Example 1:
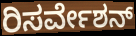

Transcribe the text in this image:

ರಿಸರ್ವೇಶನ್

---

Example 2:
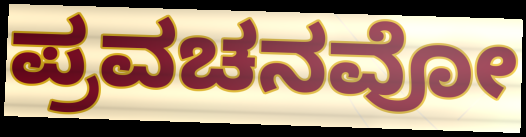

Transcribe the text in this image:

ಪ್ರವಚನವೋ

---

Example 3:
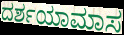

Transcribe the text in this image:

ದರ್ಶಯಾಮಾಸ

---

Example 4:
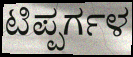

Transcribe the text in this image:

ಟಿಪ್ಪರ್ಗಳ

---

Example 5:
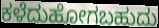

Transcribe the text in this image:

ಕಳೆದುಹೋಗಬಹುದು